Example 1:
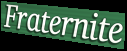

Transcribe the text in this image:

Fraternite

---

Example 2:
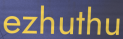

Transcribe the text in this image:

ezhuthu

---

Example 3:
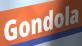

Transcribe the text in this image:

Gondola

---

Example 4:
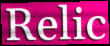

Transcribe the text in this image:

Relic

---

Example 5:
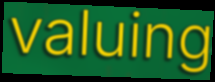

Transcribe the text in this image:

valuing